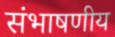
संभाषणीय